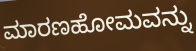
ಮಾರಣಹೋಮವನ್ನು